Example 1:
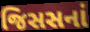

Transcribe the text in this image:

જિસસનાં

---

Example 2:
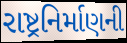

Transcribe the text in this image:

રાષ્ટ્રનિર્માણની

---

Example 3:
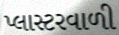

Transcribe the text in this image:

પ્લાસ્ટરવાળી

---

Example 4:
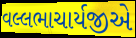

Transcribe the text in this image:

વલ્લભાચાર્યજીએ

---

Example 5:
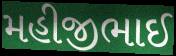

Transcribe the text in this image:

મહીજીભાઈ